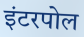
इंटरपोल